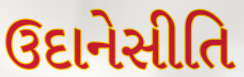
ઉદાનેસીતિ